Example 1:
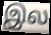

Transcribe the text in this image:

இல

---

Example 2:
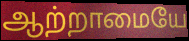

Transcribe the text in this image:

ஆற்றாமையே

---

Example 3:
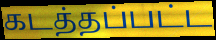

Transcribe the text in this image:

கடத்தப்பட்ட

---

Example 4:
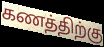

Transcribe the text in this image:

கணத்திற்கு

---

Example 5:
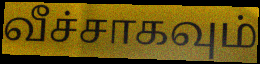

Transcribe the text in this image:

வீச்சாகவும்